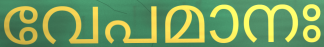
വേപമാനഃ